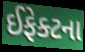
ઈફેક્ટના